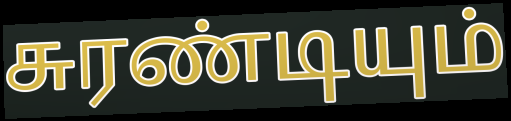
சுரண்டியும்